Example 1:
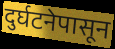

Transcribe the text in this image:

दुर्घटनेपासून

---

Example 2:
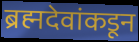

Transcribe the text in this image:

ब्रह्मदेवांकडून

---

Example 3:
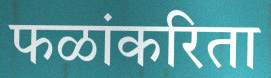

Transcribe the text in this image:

फळांकरिता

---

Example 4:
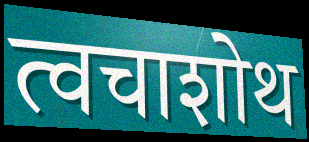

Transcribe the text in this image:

त्वचाशोथ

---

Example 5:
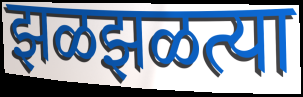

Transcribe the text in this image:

झळझळत्या